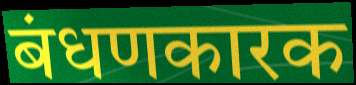
बंधणकारक